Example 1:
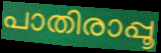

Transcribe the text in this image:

പാതിരാപ്പൂ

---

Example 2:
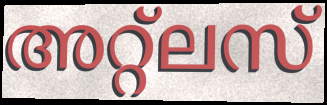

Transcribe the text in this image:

അറ്റ്ലസ്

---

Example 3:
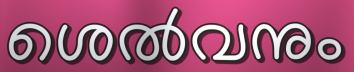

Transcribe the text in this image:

ശെൽവനും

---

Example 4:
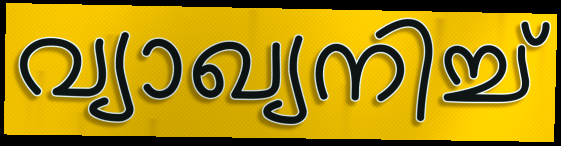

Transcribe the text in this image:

വ്യാഖ്യനിച്ച്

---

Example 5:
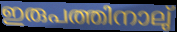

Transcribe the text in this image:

ഇരുപത്തിനാലു്